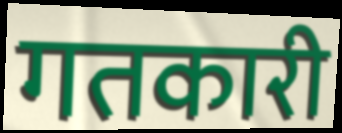
गतकारी